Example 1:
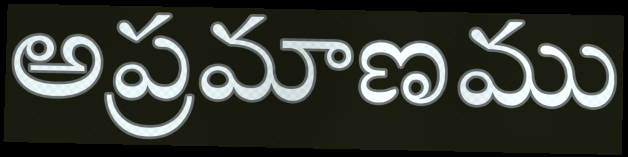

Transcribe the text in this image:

అప్రమాణము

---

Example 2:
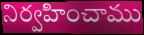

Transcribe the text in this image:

నిర్వహించాము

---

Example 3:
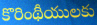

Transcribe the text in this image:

కొరింథీయులకు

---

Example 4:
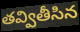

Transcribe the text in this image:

తవ్వితీసిన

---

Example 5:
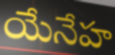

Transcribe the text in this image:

యేనేహ